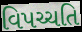
વિપચ્ચતિ